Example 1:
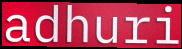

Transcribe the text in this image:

adhuri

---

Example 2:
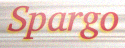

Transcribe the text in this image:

Spargo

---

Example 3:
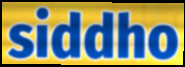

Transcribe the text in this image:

siddho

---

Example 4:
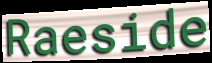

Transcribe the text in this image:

Raeside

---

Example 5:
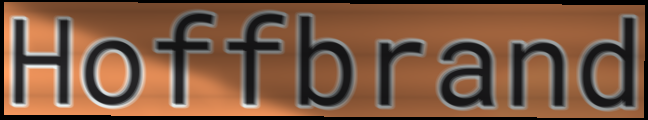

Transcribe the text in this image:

Hoffbrand